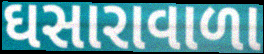
ઘસારાવાળા